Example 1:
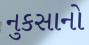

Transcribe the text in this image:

નુકસાનો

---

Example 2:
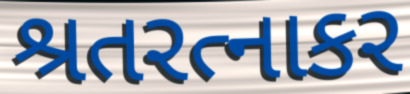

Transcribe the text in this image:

શ્રતરત્નાકર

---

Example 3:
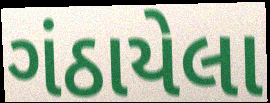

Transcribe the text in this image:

ગંઠાયેલા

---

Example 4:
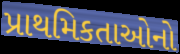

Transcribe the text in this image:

પ્રાથમિકતાઓનો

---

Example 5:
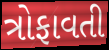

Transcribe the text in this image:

ત્રોફાવતી